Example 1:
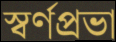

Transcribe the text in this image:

স্বর্ণপ্রভা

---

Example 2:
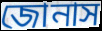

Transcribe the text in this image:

জোনাস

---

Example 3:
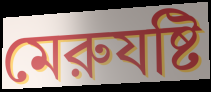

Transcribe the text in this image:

মেরুযষ্টি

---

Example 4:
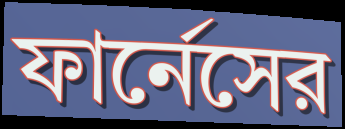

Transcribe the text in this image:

ফার্নেসের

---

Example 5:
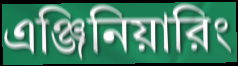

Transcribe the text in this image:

এঞ্জিনিয়ারিং